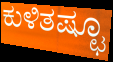
ಕುಳಿತಷ್ಟೂ